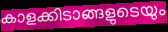
കാളക്കിടാങ്ങളുടെയും